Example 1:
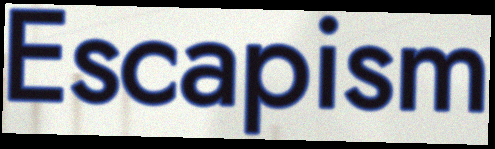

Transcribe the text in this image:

Escapism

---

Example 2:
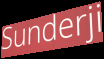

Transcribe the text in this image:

Sunderji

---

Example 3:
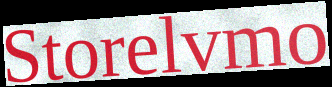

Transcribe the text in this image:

Storelvmo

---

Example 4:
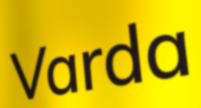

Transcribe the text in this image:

Varda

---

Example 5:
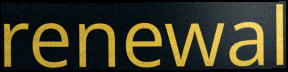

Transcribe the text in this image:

renewal